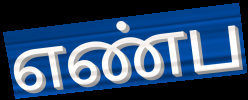
எண்ப